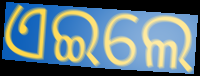
ଏଇଲେ